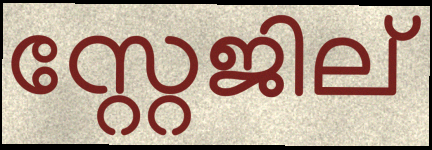
സ്റ്റേജില്